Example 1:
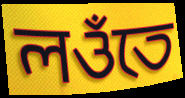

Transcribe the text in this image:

লওঁতে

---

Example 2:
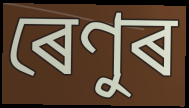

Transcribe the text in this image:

ৰেণুৰ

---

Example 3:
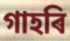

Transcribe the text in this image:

গাহৰি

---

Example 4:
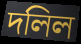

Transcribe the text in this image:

দলিল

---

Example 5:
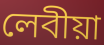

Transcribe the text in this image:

লেবীয়া